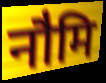
नौमि